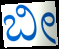
ಬೀ